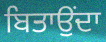
ਬਿਤਾਉਂਦਾ